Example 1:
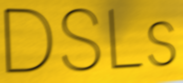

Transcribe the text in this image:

DSLs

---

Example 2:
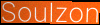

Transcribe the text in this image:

Soulzon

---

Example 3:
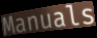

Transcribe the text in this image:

Manuals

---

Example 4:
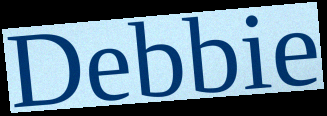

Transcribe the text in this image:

Debbie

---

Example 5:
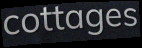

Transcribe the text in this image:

cottages